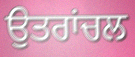
ਉਤਰਾਂਚਲ